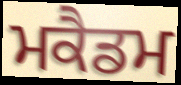
ਮਕੈਡਮ